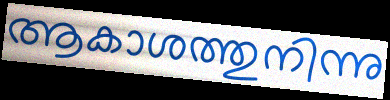
ആകാശത്തുനിന്നു